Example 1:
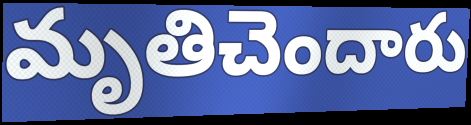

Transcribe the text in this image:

మృతిచెందారు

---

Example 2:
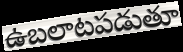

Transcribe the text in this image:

ఉబలాటపడుతూ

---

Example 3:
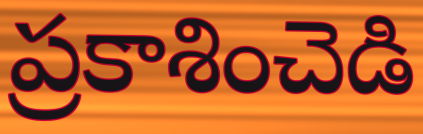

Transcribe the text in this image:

ప్రకాశించెడి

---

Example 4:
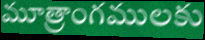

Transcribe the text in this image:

మూత్రాంగములకు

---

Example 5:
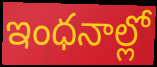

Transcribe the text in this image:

ఇంధనాల్లో